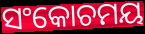
ସଂକୋଚମୟ